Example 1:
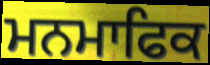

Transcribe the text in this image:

ਮਨਮਾਫਿਕ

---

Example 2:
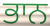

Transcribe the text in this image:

ਭਾਨ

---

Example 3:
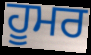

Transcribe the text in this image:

ਹੂਮਰ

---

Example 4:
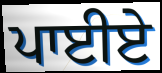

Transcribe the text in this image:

ਪਾਈਏ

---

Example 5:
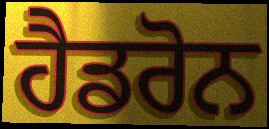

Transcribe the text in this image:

ਹੈਡਰੋਨ